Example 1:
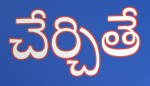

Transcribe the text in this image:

చేర్చితే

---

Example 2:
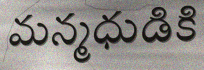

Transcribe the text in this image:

మన్మధుడికి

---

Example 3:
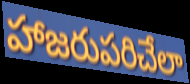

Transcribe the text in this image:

హాజరుపరిచేలా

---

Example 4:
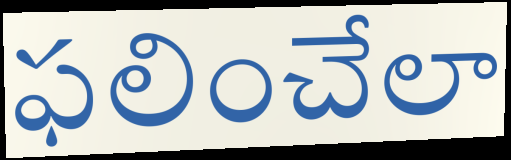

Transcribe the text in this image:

ఫలించేలా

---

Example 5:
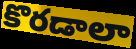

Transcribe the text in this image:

కొరడాలా